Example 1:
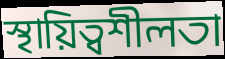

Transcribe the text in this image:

স্থায়িত্বশীলতা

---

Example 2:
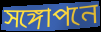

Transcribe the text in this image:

সঙ্গোপনে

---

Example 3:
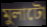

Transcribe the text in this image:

মুলাটো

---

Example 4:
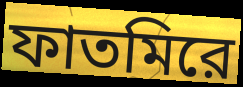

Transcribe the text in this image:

ফাতমিরে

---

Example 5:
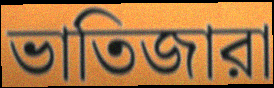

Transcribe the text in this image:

ভাতিজারা